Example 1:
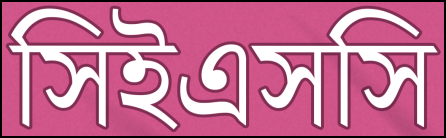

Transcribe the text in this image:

সিইএসসি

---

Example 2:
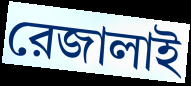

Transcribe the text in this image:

রেজালাই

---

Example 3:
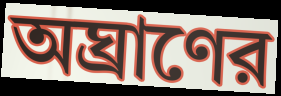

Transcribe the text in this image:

অঘ্রাণের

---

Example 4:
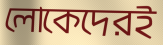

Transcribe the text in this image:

লোকেদেরই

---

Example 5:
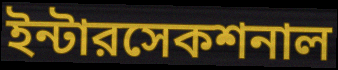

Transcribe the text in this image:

ইন্টারসেকশনাল